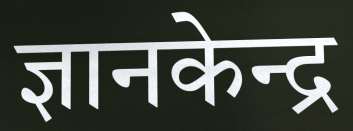
ज्ञानकेन्द्र